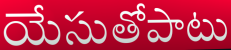
యేసుతోపాటు